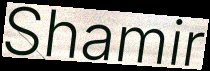
Shamir